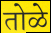
तोळे